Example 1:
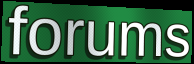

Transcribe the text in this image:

forums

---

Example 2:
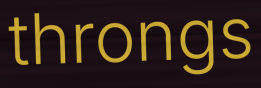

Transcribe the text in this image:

throngs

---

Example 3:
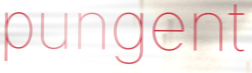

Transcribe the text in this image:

pungent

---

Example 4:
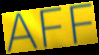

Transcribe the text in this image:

AFF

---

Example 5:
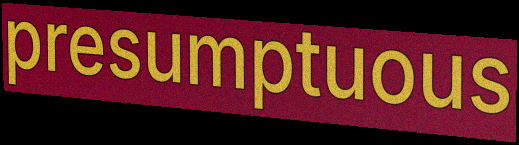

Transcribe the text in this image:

presumptuous